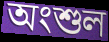
অংশুল